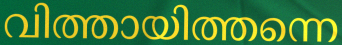
വിത്തായിത്തന്നെ